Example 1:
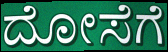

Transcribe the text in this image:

ದೋಸೆಗೆ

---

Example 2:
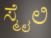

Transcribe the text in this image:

ಸ್ಮೈಲಿ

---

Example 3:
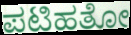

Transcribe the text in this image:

ಪಟಿಹತೋ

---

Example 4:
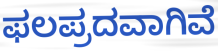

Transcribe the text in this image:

ಫಲಪ್ರದವಾಗಿವೆ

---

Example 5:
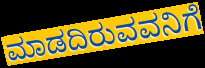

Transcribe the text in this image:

ಮಾಡದಿರುವವನಿಗೆ